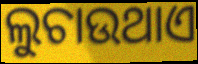
ଲୁଚାଉଥାଏ